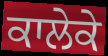
ਕਾਲੇਕੇ